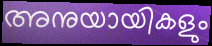
അനുയായികളും